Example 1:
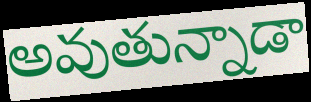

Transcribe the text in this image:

అవుతున్నాడా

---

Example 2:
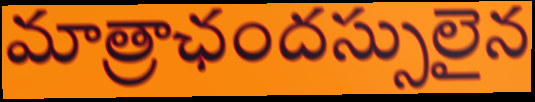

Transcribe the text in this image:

మాత్రాఛందస్సులైన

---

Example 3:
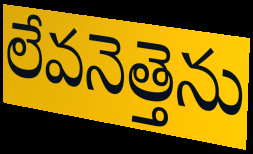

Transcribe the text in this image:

లేవనెత్తెను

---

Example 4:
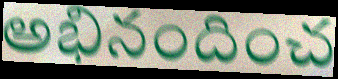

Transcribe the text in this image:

అభినందించ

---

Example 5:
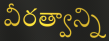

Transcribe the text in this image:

వీరత్వాన్ని